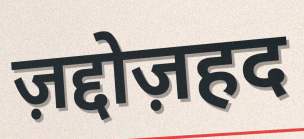
ज़द्दोज़हद